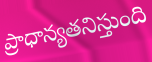
ప్రాధాన్యతనిస్తుంది